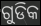
ଗୁଡିକ